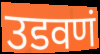
उडवणं